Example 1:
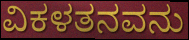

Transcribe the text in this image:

ವಿಕಳತನವನು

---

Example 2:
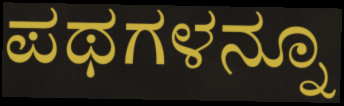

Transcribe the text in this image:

ಪಥಗಳನ್ನೂ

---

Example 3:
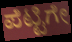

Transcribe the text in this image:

ಪೆಟ್ಟಿಗೇ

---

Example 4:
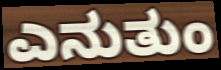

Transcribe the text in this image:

ಎನುತುಂ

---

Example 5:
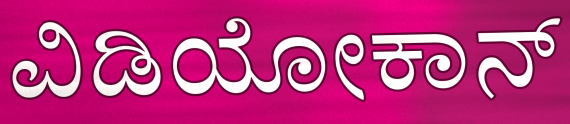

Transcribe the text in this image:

ವಿಡಿಯೋಕಾನ್